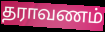
தராவணம்